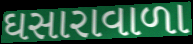
ઘસારાવાળા